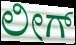
ಲೀಗ್